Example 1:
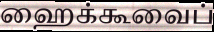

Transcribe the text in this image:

ஹைக்கூவைப்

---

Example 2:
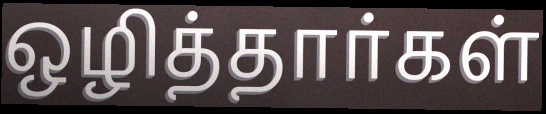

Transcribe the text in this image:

ஒழித்தார்கள்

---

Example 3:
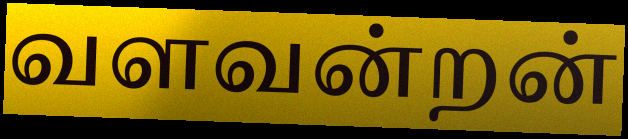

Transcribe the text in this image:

வளவன்றன்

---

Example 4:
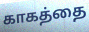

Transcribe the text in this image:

காகத்தை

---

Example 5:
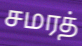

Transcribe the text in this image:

சமரத்